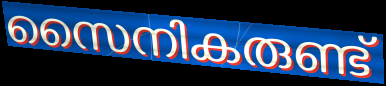
സൈനികരുണ്ട്